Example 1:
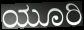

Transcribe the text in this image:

ಯೂರಿ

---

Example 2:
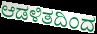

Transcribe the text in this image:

ಆಡಳಿತದಿಂದ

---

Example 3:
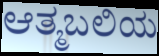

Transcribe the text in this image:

ಆತ್ಮಬಲಿಯ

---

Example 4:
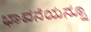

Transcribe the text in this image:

ಭಾವನೆಯನ್ನೂ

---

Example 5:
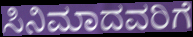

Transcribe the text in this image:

ಸಿನಿಮಾದವರಿಗೆ